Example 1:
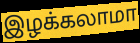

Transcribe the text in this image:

இழக்கலாமா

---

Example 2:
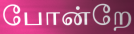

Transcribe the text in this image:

போன்றே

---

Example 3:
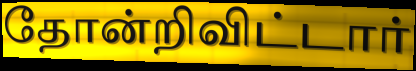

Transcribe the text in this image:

தோன்றிவிட்டார்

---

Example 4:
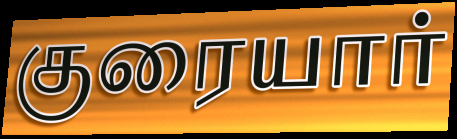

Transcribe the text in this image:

குரையார்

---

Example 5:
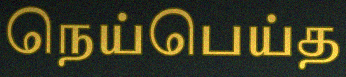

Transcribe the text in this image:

நெய்பெய்த